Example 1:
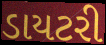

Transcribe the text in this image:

ડાયટરી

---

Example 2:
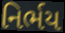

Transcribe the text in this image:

નિર્ભય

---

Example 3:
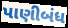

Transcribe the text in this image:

પાણીબંધ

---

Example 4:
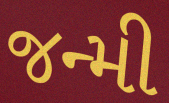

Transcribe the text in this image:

જન્મી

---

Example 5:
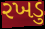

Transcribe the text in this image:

રખડુ